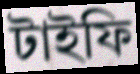
টাইফি